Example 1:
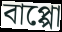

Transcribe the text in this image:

বাপ্পো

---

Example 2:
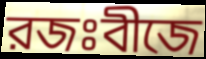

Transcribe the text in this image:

রজঃবীজে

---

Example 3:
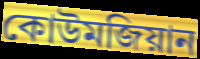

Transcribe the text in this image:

কোউমজিয়ান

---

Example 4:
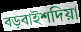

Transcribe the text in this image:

বড়বাইশদিয়া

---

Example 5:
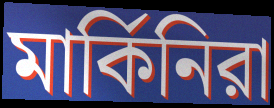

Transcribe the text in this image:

মার্কিনিরা